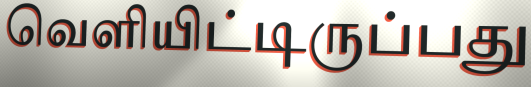
வெளியிட்டிருப்பது